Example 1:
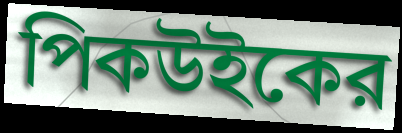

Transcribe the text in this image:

পিকউইকের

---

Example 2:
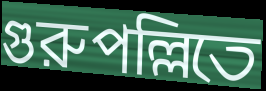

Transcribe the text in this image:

গুরুপল্লিতে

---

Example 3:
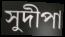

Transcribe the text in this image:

সুদীপা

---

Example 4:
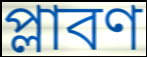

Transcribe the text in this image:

প্লাবণ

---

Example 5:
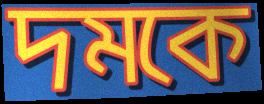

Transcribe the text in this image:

দমকে